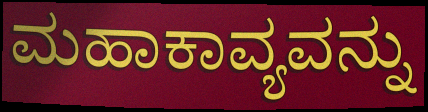
ಮಹಾಕಾವ್ಯವನ್ನು